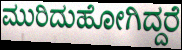
ಮುರಿದುಹೋಗಿದ್ದರೆ